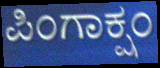
ಪಿಂಗಾಕ್ಷಂ